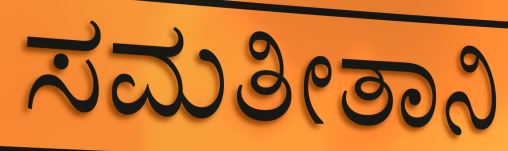
ಸಮತೀತಾನಿ